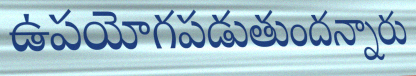
ఉపయోగపడుతుందన్నారు